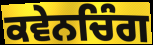
ਕਵੇਨਚਿੰਗ